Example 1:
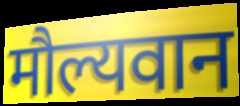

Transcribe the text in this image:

मौल्यवान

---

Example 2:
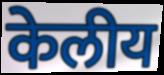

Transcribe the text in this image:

केलीय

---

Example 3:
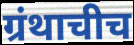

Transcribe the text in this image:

ग्रंथाचीच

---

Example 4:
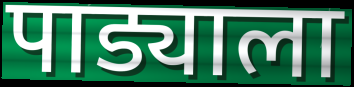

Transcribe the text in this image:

पाड्याला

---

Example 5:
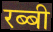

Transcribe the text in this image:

रब्बी